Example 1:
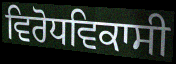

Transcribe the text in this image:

ਵਿਰੋਧਵਿਕਾਸੀ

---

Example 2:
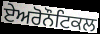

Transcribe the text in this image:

ਏਅਰੋਨੌਟਿਕਲ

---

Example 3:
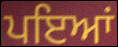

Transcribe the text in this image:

ਪਇਆਂ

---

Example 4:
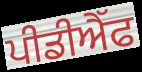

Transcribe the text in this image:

ਪੀਡੀਐੱਫ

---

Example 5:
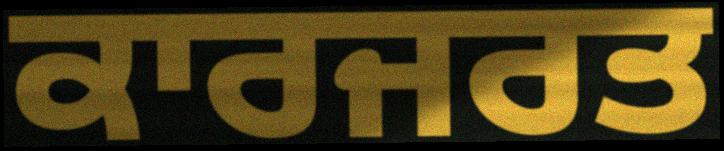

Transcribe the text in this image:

ਕਾਰਜਰਤ